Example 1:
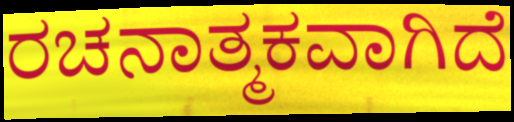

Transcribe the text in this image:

ರಚನಾತ್ಮಕವಾಗಿದೆ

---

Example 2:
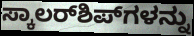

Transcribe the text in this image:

ಸ್ಕಾಲರ್‌ಶಿಪ್‌ಗಳನ್ನು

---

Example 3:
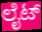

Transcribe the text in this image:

ಲೈಟ್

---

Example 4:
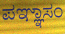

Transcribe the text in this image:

ಪಞ್ಞಾಸಂ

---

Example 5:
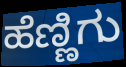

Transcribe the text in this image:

ಹೆಣ್ಣಿಗು